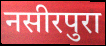
नसीरपुरा